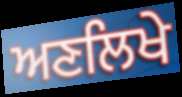
ਅਣਲਿਖੇ